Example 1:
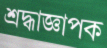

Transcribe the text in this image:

শ্রদ্ধাজ্ঞাপক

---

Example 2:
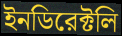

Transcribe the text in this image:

ইনডিরেক্টলি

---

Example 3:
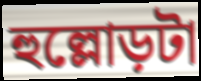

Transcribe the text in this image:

হুল্লোড়টা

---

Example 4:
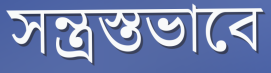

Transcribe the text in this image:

সন্ত্রস্তভাবে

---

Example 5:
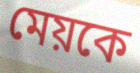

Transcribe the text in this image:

মেয়কে